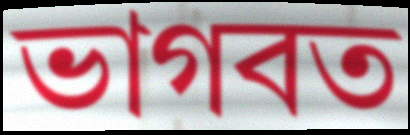
ভাগবত